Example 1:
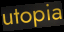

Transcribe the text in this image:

utopia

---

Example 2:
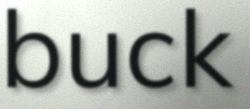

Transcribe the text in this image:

buck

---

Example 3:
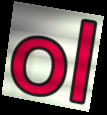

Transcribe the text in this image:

ol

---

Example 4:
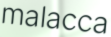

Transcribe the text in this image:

malacca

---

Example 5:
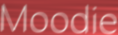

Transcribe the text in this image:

Moodie